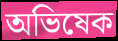
অভিষেক